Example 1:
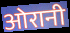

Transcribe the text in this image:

ओरानी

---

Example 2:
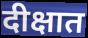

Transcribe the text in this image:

दीक्षात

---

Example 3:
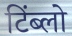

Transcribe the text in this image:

टिंब्लो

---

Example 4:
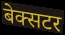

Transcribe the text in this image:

बेक्सटर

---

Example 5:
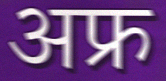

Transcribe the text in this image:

अफ्र